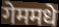
गेममधे